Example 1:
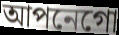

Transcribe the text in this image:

আপনেগো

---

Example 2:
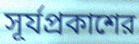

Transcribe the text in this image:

সূর্যপ্রকাশের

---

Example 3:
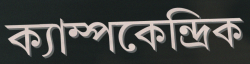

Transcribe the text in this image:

ক্যাম্পকেন্দ্রিক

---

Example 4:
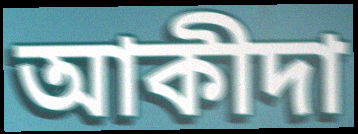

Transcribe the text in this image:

আকীদা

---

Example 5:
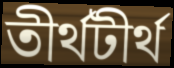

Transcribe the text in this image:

তীর্থটীর্থ